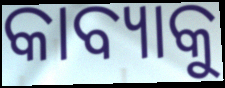
କାବ୍ୟାକୁ